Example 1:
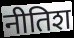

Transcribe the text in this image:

नीतिश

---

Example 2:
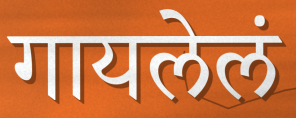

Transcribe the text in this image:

गायलेलं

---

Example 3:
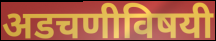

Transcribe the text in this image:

अडचणीविषयी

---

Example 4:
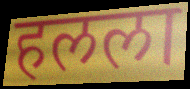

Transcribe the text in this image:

हलला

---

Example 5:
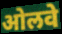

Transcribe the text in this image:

ओलवे